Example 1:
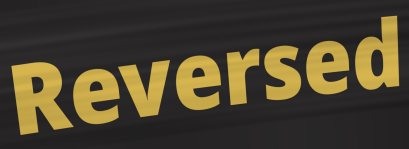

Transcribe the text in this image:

Reversed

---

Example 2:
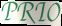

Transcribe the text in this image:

PRIO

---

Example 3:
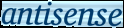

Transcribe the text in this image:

antisense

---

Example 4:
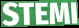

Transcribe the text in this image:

STEMI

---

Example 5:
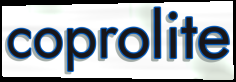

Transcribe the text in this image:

coprolite